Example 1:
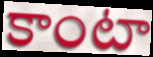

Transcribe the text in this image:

కాంటా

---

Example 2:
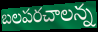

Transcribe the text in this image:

బలపరచాలన్న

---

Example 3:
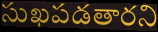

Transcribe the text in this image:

సుఖపడతారని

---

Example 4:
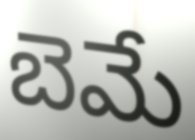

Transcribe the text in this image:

బెమే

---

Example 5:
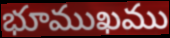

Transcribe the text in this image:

భూముఖము